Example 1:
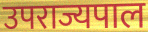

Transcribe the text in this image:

उपराज्यपाल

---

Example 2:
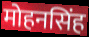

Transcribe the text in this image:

मोहनसिंह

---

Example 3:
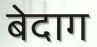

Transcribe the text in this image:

बेदाग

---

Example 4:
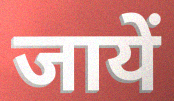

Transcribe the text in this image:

जायें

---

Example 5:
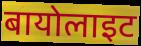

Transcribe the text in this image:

बायोलाइट